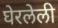
घेरलेली